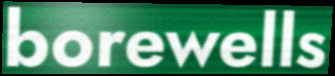
borewells